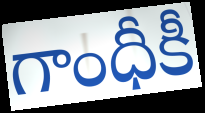
గాంధీకీ